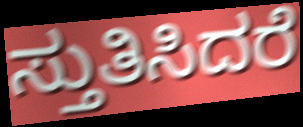
ಸ್ತುತಿಸಿದರೆ